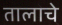
तालाचे